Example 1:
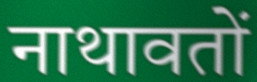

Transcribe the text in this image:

नाथावतों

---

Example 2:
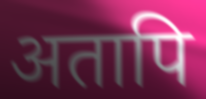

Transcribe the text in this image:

अतापि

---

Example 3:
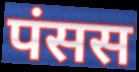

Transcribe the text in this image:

पंसस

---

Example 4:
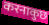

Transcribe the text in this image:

करनाकुछ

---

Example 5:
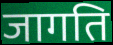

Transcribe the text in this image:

जागति